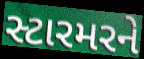
સ્ટારમરને